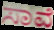
ಸಾವೆ